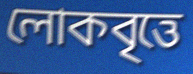
লোকবৃত্তে